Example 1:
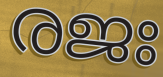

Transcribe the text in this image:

രജഃ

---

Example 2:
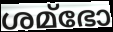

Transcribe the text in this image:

ശമ്ഭോ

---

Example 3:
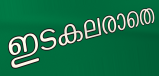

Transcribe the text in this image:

ഇടകലരാതെ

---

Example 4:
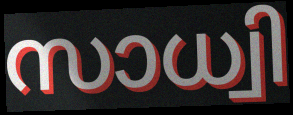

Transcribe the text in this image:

സാധ്വി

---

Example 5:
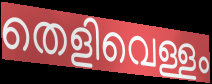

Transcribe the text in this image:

തെളിവെള്ളം